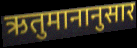
ऋतुमानानुसार